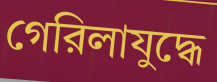
গেরিলাযুদ্ধে